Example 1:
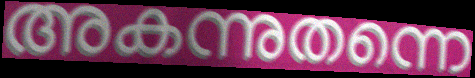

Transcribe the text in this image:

അകന്നുതന്നെ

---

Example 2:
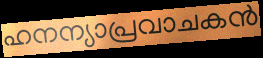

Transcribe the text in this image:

ഹനന്യാപ്രവാചകൻ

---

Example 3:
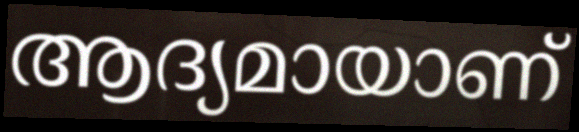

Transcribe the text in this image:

ആദ്യമായാണ്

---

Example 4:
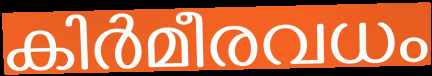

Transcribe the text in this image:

കിർമീരവധം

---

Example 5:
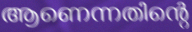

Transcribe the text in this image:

ആണെന്നതിന്റെ